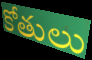
కోతులు